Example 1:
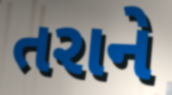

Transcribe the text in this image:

તરાને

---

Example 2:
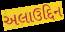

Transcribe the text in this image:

અલાઉદ્દિન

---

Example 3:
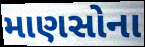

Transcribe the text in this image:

માણસોના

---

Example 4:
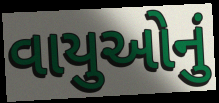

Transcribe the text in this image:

વાયુઓનું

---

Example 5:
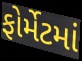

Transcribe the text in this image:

ફોર્મેટમાં